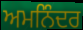
ਅਮਨਿੰਦਰ